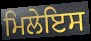
ਮਿਲੇਇਸ